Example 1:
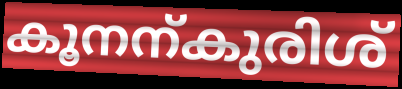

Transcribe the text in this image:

കൂനന്കുരിശ്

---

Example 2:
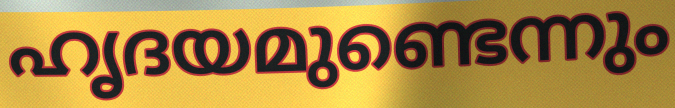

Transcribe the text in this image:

ഹൃദയമുണ്ടെന്നും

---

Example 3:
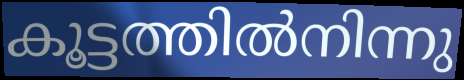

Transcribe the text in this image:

കൂട്ടത്തിൽനിന്നു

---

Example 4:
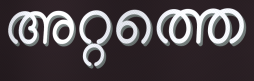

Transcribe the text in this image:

അറ്റത്തെ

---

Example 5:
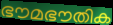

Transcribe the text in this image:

ഭൗമഭൗതിക